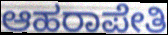
ಆಹರಾಪೇತಿ